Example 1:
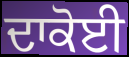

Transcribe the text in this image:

ਦਾਕੋਈ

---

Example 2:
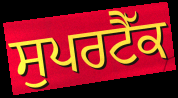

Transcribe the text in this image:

ਸੁਪਰਟੈੱਕ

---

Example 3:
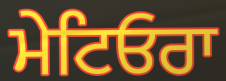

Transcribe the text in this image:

ਮੇਟਿਓਰਾ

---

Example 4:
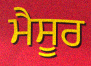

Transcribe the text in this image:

ਮੈਸੂਰ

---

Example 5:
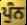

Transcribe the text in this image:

ਪੁੰਨ